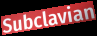
Subclavian